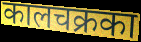
कालचक्रका